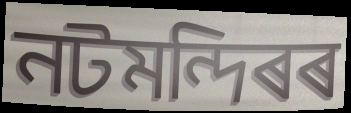
নটমন্দিৰৰ